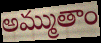
అమ్ముతాం